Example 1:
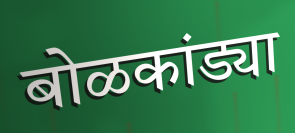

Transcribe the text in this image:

बोळकांड्या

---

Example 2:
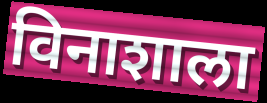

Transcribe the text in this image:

विनाशाला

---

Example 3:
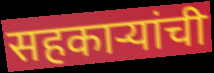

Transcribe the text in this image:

सहकाऱ्यांची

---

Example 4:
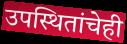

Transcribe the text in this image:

उपस्थितांचेही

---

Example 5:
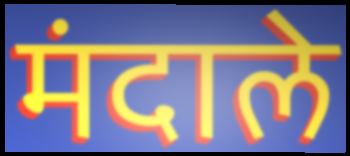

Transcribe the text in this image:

मंदाले